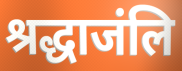
श्रद्धाजंलि